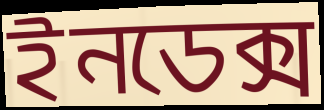
ইনডেক্স